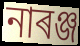
নাৰঞ্জ